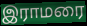
இராமரை